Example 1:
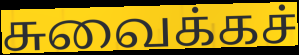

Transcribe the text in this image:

சுவைக்கச்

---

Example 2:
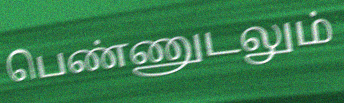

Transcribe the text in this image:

பெண்ணுடலும்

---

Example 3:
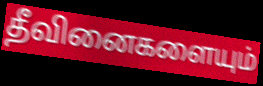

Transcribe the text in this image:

தீவினைகளையும்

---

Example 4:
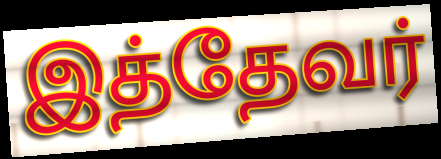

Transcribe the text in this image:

இத்தேவர்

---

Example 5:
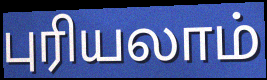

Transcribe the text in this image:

புரியலாம்